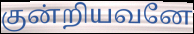
குன்றியவனே